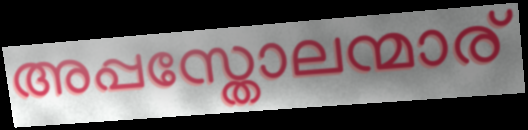
അപ്പസ്തോലന്മാര്